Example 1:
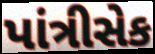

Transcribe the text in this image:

પાંત્રીસેક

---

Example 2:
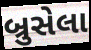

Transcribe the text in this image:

બ્રુસેલા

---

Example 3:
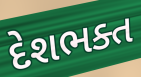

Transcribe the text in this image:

દેશભક્ત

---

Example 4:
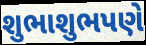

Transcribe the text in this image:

શુભાશુભપણે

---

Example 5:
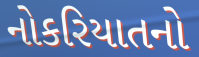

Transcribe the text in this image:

નોકરિયાતનો